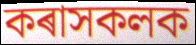
কৰাসকলক